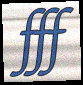
fff